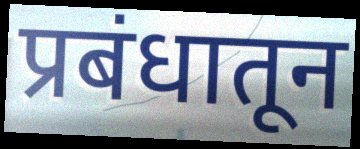
प्रबंधातून